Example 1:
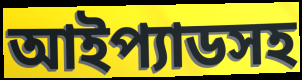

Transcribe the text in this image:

আইপ্যাডসহ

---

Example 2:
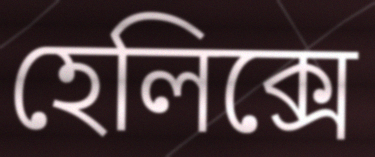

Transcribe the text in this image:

হেলিক্সে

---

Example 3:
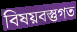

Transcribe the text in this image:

বিষয়বস্তুগত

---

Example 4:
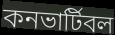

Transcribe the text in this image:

কনভার্টিবল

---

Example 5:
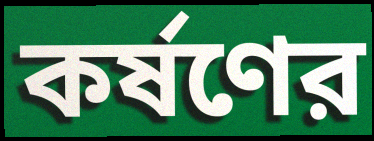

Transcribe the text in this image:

কর্ষণের